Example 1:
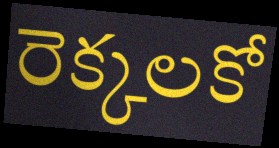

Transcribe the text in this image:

రెక్కలకో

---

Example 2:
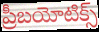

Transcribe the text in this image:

ప్రీబయోటిక్స్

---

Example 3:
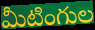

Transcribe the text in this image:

మీటింగుల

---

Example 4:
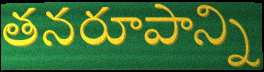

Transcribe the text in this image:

తనరూపాన్ని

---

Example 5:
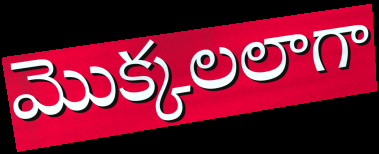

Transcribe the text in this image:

మొక్కలలాగా